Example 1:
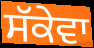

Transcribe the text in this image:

ਸੱਕੇਵਾ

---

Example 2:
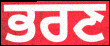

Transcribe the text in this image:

ਭਰਣ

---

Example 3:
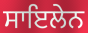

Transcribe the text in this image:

ਸਾਇਲੇਨ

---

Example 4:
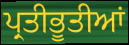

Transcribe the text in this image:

ਪ੍ਰਤੀਭੂਤੀਆਂ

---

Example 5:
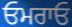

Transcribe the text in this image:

ਓਮਰਾਓ